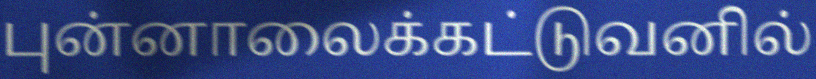
புன்னாலைக்கட்டுவனில்